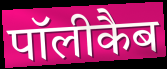
पॉलीकैब